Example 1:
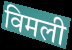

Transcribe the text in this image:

विमली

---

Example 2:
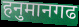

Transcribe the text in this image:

हनुमानगढ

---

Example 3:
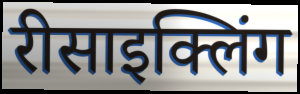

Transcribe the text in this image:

रीसाइक्लिंग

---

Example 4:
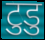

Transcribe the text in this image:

टुडु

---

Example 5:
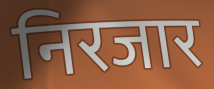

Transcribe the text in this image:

निरजार